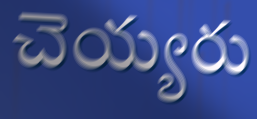
చెయ్యరు